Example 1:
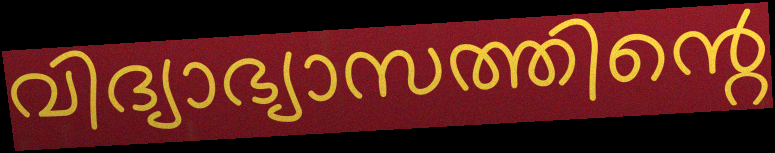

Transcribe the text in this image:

വിദ്യാഭ്യാസത്തിന്റെ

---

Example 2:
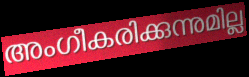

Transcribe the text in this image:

അംഗീകരിക്കുന്നുമില്ല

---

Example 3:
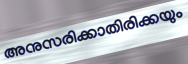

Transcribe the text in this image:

അനുസരിക്കാതിരിക്കയും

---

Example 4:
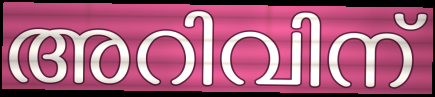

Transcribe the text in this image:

അറിവിന്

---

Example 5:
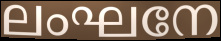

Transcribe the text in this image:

ലംഘനേ